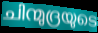
ചിന്മുദ്രയുടെ